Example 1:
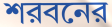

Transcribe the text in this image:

শরবনের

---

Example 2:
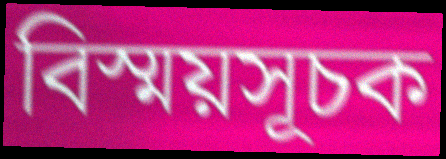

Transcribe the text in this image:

বিস্ময়সূচক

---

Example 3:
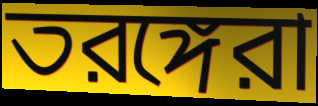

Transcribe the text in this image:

তরঙ্গেরা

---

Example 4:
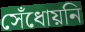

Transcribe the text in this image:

সেঁধোয়নি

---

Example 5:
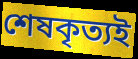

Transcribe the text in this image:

শেষকৃত্যই